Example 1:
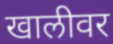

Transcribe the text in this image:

खालीवर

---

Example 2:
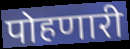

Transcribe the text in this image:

पोहणारी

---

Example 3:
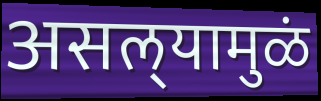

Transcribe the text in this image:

असल्यामुळं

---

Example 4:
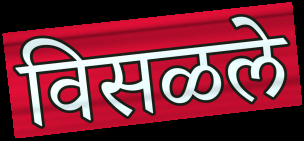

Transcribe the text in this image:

विसळले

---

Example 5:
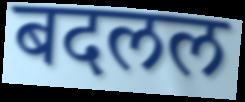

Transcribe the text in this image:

बदलल